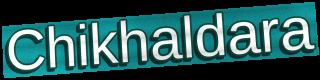
Chikhaldara